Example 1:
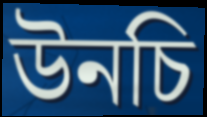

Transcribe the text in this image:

উনচি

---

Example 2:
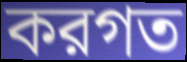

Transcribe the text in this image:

করগত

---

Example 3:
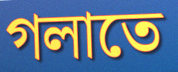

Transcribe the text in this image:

গলাতে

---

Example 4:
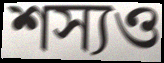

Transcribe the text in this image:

শস্যও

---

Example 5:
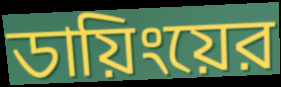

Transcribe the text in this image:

ডায়িংয়ের